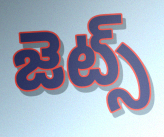
జెట్స్